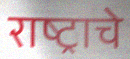
राष्ट्राचे